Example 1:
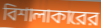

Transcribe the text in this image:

বিশালাকারের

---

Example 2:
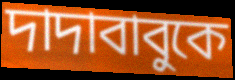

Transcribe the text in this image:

দাদাবাবুকে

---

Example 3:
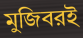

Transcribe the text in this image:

মুজিবরই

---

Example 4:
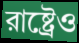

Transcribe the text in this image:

রাষ্ট্রেও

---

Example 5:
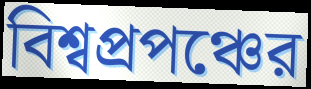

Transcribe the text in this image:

বিশ্বপ্রপঞ্চের